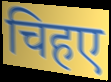
चिहए